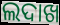
ଲଦାଖ